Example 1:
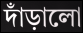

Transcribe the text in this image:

দাঁড়ালো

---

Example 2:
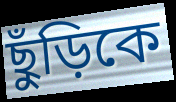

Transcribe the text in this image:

ছুঁড়িকে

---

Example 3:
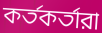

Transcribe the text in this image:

কর্তকর্তারা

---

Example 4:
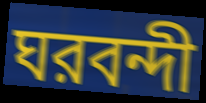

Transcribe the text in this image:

ঘরবন্দী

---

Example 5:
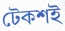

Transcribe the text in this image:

টেকশই